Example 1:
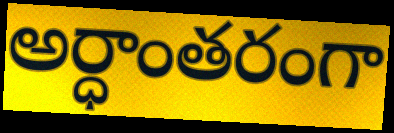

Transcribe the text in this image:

అర్ధాంతరంగా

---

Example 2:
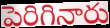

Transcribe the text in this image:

పెరిగినారు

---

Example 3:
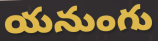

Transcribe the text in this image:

యనుంగు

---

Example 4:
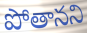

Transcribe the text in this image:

పోతానని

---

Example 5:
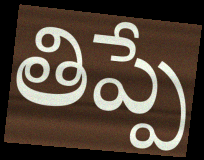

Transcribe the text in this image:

తిప్పే